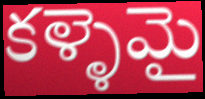
కళ్ళెమై